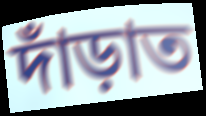
দাঁড়াত